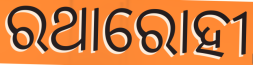
ରଥାରୋହୀ